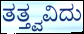
ತತ್ತ್ವವಿದು